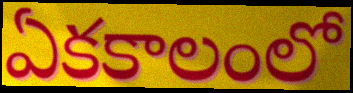
ఏకకాలంలో